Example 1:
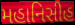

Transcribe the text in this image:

મહાનિસીહ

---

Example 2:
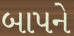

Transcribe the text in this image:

બાપને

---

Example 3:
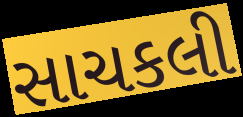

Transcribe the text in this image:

સાચકલી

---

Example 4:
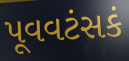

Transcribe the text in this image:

પૂવવટંસકં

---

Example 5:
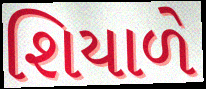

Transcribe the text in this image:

શિયાળે